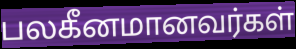
பலகீனமானவர்கள்